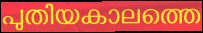
പുതിയകാലത്തെ